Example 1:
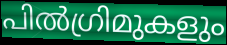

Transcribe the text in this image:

പിൽഗ്രിമുകളും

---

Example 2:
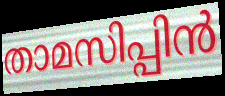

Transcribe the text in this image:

താമസിപ്പിൻ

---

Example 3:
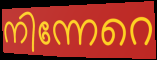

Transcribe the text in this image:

നിന്നേറെ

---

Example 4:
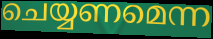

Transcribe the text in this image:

ചെയ്യണമെന്ന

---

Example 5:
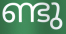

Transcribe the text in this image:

ണ്ടു